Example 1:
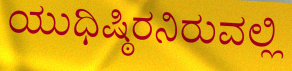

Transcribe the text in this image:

ಯುಧಿಷ್ಠಿರನಿರುವಲ್ಲಿ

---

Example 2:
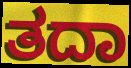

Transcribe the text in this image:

ತದಾ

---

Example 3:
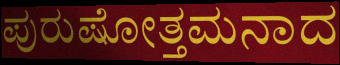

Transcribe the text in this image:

ಪುರುಷೋತ್ತಮನಾದ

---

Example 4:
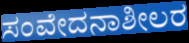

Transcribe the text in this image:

ಸಂವೇದನಾಶೀಲರ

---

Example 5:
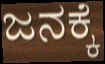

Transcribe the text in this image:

ಜನಕ್ಕೆ